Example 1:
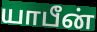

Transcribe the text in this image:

யாபீன்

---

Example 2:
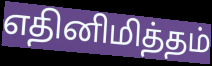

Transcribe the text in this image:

எதினிமித்தம்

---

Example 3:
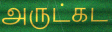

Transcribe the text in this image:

அருட்கட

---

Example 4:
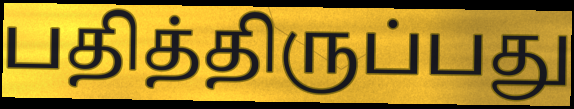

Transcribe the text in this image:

பதித்திருப்பது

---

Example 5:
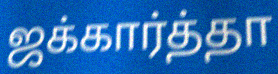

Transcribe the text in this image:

ஜக்கார்த்தா